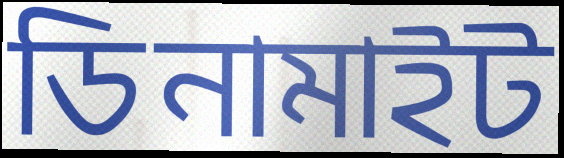
ডিনামাইট